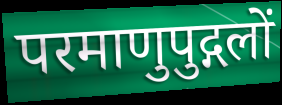
परमाणुपुद्गलों